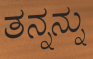
ತನ್ನನ್ನು